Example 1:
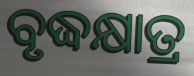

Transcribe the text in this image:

ବୃଦ୍ଧକ୍ଷାତ୍ର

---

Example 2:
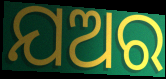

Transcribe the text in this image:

ଯଅର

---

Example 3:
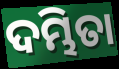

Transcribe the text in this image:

ଦମ୍ଭିତା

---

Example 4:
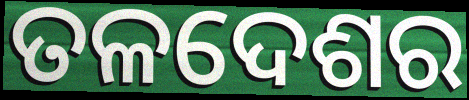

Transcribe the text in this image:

ତଳଦେଶର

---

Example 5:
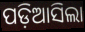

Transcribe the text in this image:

ପଡ଼ିଆସିଲା